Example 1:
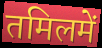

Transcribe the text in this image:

तमिलमें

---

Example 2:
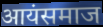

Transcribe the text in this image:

आयंसमाज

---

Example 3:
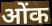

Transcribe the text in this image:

ओंक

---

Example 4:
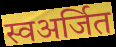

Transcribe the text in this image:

स्वअर्जित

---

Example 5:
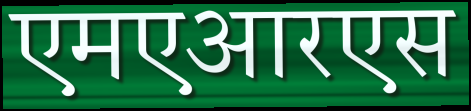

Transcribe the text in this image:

एमएआरएस